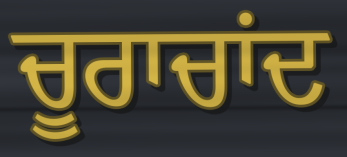
ਚੂਰਾਚਾਂਦ